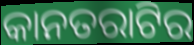
କାନତରାଟିର